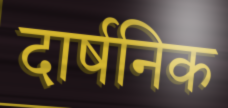
दार्षनिक